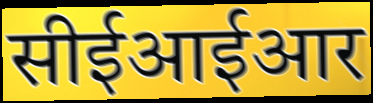
सीईआईआर